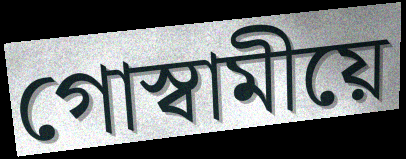
গোস্বামীয়ে